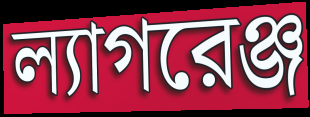
ল্যাগরেঞ্জ